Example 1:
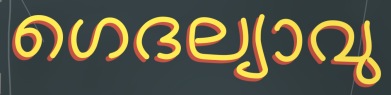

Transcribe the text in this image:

ഗെദല്യാവു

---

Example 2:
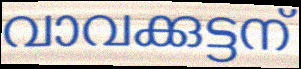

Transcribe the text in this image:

വാവക്കുട്ടന്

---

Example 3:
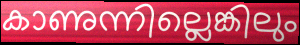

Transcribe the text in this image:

കാണുന്നില്ലെങ്കിലും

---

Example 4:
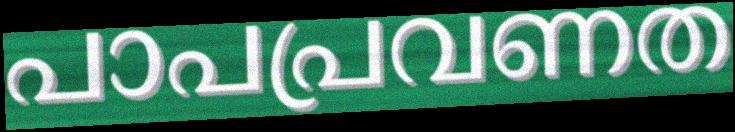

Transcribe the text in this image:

പാപപ്രവണത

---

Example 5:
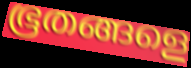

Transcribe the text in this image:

ഭൂതങ്ങളെ